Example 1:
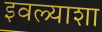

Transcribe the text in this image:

इवल्याशा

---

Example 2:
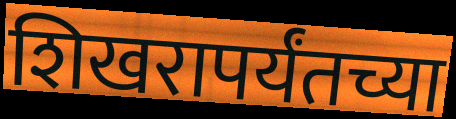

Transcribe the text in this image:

शिखरापर्यंतच्या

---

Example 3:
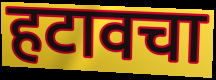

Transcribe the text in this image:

हटावचा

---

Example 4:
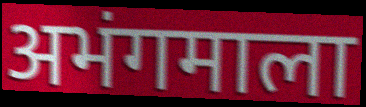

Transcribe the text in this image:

अभंगमाला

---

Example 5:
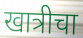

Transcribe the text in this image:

खात्रीचा